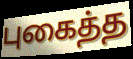
புகைத்த